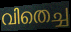
വിതെച്ച